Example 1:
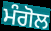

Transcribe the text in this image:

ਮੰਗੋਲ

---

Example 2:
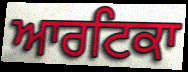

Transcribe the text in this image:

ਆਰਟਿਕਾ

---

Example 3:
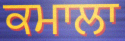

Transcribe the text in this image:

ਕਮਾਲਾ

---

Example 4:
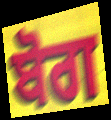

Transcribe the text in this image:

ਬੋਗ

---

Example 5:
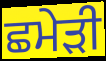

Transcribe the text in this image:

ਛਮੇੜੀ